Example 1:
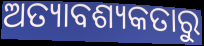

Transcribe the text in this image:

ଅତ୍ୟାବଶ୍ୟକତାରୁ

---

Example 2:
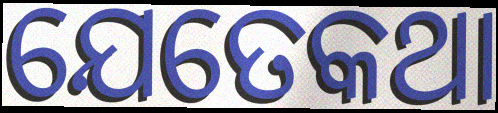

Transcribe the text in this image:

ଯେତେକଥା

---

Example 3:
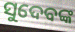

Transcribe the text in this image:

ସୁଦେବଙ୍କ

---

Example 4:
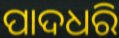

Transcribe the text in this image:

ପାଦଧରି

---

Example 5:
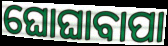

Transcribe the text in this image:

ଘୋଘାବାପା